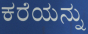
ಕರೆಯನ್ನು